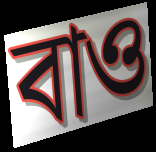
বাও